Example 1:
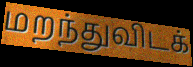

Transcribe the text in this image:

மறந்துவிடக்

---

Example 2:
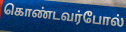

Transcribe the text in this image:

கொண்டவர்போல்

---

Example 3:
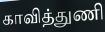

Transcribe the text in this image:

காவித்துணி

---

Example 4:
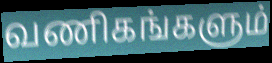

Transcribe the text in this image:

வணிகங்களும்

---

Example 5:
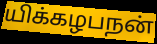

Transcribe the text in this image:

யிக்கழபநன்